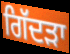
ਗਿੱਦੜਾ